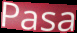
Pasa